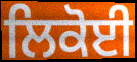
ਲਿਕੋਈ